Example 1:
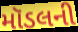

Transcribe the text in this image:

મૉડલની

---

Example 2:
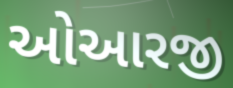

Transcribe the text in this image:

ઓઆરજી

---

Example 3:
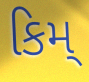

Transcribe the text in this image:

કિમ્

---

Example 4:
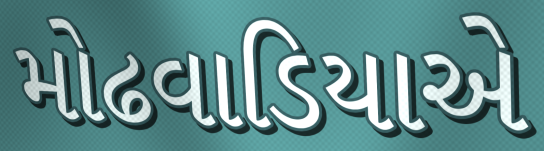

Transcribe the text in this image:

મોઢવાડિયાએ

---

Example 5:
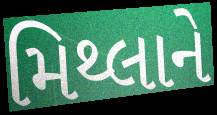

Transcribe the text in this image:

મિથ્લાને